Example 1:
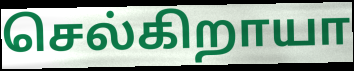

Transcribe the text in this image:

செல்கிறாயா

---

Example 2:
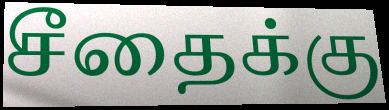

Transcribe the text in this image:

சீதைக்கு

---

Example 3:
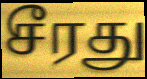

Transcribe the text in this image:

சீரது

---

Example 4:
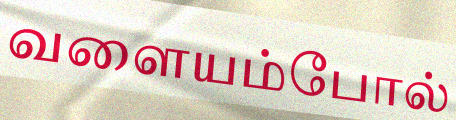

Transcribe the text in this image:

வளையம்போல்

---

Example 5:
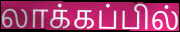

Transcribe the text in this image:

லாக்கப்பில்